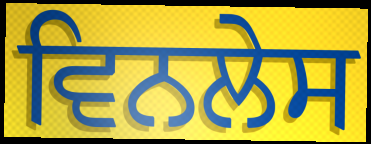
ਵਿਨਲੇਸ